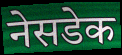
नेसडेक